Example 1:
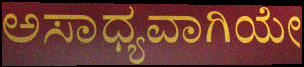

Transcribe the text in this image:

ಅಸಾಧ್ಯವಾಗಿಯೇ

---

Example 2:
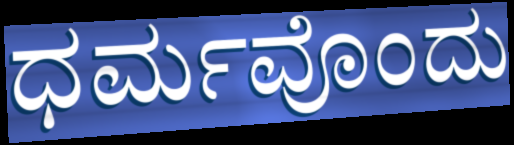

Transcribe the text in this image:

ಧರ್ಮವೊಂದು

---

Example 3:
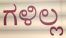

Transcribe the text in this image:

ಗಳಿಲ್ಲ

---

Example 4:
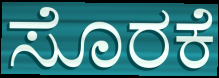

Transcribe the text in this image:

ಸೊರಕೆ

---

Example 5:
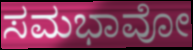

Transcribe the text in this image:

ಸಮಭಾವೋ